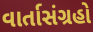
વાર્તાસંગ્રહો